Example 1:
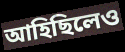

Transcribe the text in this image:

আহিছিলেও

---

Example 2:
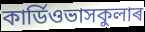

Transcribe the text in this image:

কাৰ্ডিওভাসকুলাৰ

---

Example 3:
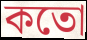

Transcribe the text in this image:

কতো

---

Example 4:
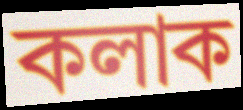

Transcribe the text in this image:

কলাক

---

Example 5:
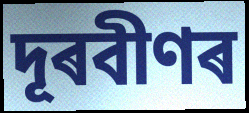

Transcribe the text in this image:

দূৰবীণৰ